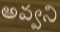
అవ్వని